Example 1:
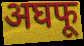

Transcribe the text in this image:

अघफू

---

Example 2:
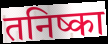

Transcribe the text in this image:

तनिष्का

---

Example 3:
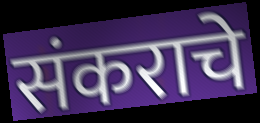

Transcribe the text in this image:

संकराचे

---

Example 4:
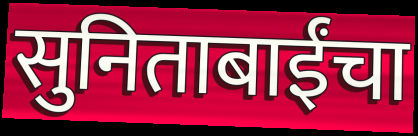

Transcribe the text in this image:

सुनिताबाईंचा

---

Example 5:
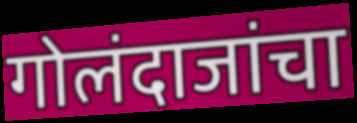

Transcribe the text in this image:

गोलंदाजांचा